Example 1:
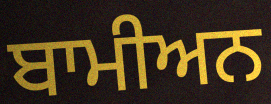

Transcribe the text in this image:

ਬਾਮੀਅਨ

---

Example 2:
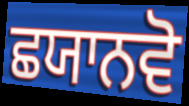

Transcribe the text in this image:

ਛਯਾਨਵੋ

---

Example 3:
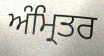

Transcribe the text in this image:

ਅੰਮ੍ਰਿਤਰ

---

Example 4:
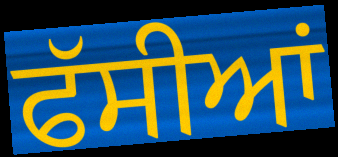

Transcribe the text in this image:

ਫੱਸੀਆਂ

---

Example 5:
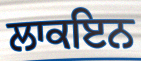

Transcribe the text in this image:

ਲਾਕਇਨ